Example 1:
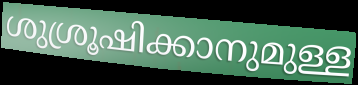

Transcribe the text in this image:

ശുശ്രൂഷിക്കാനുമുള്ള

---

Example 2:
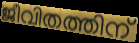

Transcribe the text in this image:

ജീവിതത്തിന്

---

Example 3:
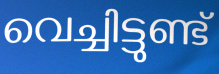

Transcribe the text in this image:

വെച്ചിട്ടുണ്ട്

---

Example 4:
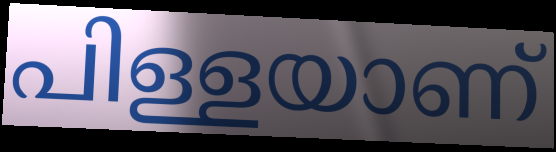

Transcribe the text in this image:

പിള്ളയാണ്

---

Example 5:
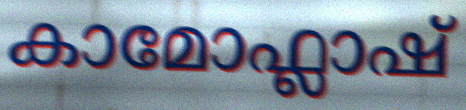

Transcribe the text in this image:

കാമോഫ്ലാഷ്